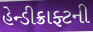
હેન્ડીક્રાફ્ટની